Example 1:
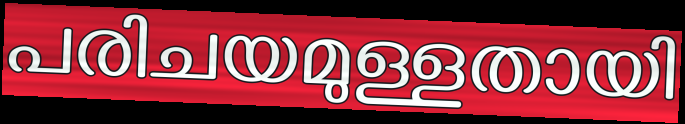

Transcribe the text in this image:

പരിചയമുള്ളതായി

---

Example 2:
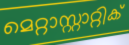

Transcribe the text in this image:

മെറ്റാസ്റ്റാറ്റിക്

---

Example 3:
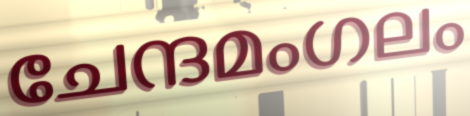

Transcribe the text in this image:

ചേന്ദമംഗലം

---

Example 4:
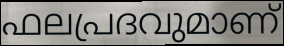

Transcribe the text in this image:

ഫലപ്രദവുമാണ്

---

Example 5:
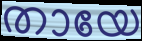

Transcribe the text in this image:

തായേ